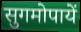
सुगमोपायें